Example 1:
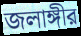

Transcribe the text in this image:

জলাঙ্গীর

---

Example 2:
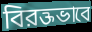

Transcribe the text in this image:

বিরক্তভাবে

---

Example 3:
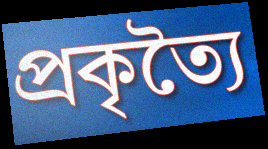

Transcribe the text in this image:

প্রকৃত্যৈ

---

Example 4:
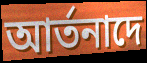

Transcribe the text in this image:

আর্তনাদে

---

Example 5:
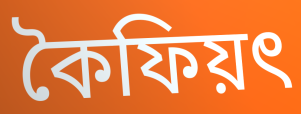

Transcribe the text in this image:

কৈফিয়ৎ